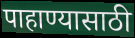
पाहाण्यासाठी